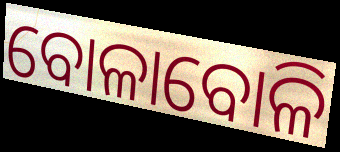
ବୋଳାବୋଳି